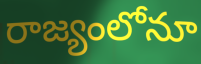
రాజ్యంలోనూ